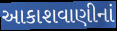
આકાશવાણીનાં